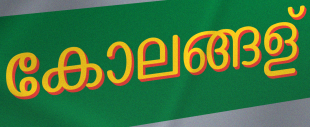
കോലങ്ങള്